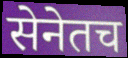
सेनेतच